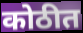
कोठीत